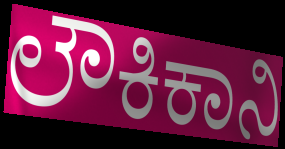
ಲೌಕಿಕಾನಿ